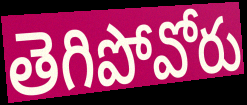
తెగిపోవోరు